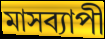
মাসব্যাপী